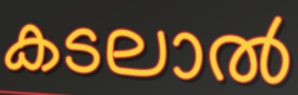
കടലാൽ